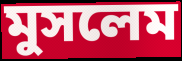
মুসলেম